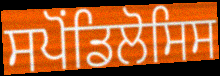
ਸਪੋਂਡਿਲੋਸਿਸ